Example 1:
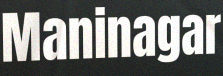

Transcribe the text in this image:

Maninagar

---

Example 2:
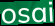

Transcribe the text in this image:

osai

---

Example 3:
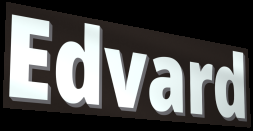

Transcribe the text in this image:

Edvard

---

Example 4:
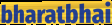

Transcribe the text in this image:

bharatbhai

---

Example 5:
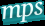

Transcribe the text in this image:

mps